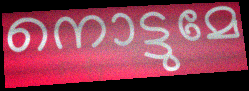
നൊട്ടുമേ